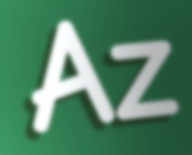
Az